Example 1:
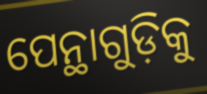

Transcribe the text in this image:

ପେନ୍ଥାଗୁଡ଼ିକୁ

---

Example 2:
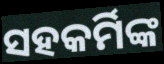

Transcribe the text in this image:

ସହକର୍ମିଙ୍କ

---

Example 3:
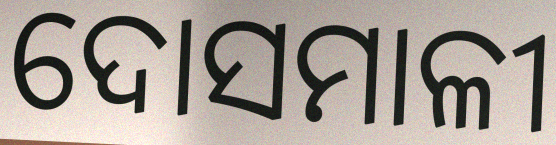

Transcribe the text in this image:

ଦୋସମାଳୀ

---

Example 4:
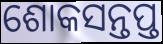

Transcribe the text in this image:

ଶୋକସନ୍ତପ୍ତ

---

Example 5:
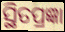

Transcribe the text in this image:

ସ୍ଥିତପ୍ରଜ୍ଞା